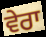
ਵੇਰਾ